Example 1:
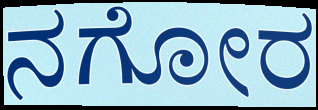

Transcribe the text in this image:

ನಗೋರ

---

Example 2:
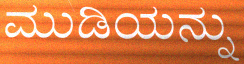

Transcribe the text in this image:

ಮುಡಿಯನ್ನು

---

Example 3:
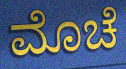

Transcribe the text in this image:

ಮೊಚೆ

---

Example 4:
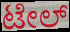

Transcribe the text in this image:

ಟೇಲ್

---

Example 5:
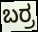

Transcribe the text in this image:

ಬರ್ರ